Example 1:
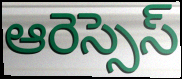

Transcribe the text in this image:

ఆరెస్సెస్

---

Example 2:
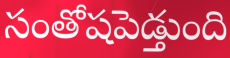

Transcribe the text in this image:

సంతోషపెడ్తుంది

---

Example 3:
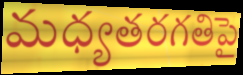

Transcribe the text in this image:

మధ్యతరగతిపై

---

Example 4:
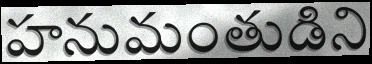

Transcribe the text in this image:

హనుమంతుడిని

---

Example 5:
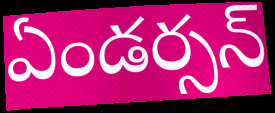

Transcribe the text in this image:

ఏండర్సన్